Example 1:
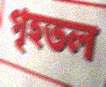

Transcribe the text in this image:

গৃহতল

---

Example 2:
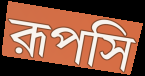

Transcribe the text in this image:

রূপসি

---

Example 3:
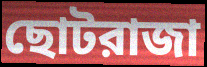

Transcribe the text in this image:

ছোটরাজা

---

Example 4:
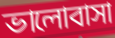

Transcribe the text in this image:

ভালোবাসা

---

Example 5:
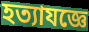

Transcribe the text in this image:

হত্যাযজ্ঞে